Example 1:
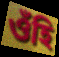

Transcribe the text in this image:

ওঁহি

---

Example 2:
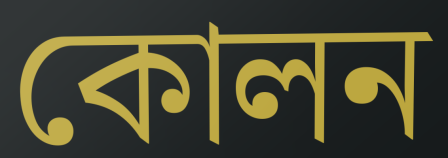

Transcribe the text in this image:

কোলন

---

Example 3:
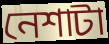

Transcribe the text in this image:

নেশাটা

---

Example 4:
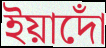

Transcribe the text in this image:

ইয়াদোঁ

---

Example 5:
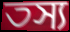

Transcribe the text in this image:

তস্য